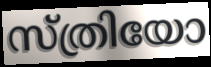
സ്ത്രിയോ